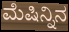
ಮೆಷಿನ್ನಿನ